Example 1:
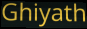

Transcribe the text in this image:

Ghiyath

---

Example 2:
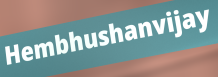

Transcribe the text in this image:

Hembhushanvijay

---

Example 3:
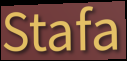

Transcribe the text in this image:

Stafa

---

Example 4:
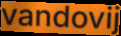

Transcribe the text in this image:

vandovij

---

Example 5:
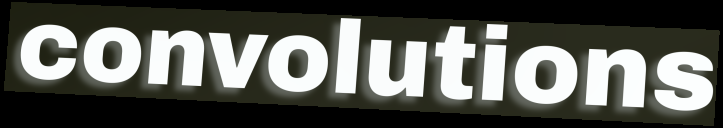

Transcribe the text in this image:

convolutions